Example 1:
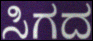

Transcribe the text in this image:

ಸಿಗದ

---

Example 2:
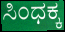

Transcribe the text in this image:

ಸಿಂಧಕ್ಕ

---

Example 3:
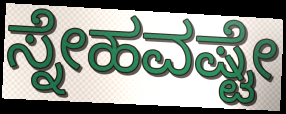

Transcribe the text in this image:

ಸ್ನೇಹವಷ್ಟೇ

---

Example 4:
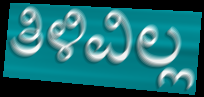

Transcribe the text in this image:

ತಿಳಿವಿಲ್ಲ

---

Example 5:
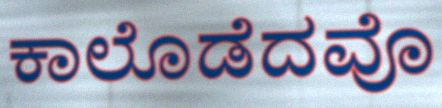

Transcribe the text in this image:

ಕಾಲೊಡೆದವೊ